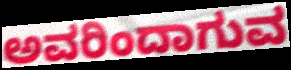
ಅವರಿಂದಾಗುವ